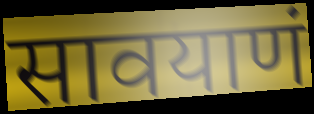
सावयाणं